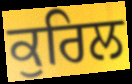
ਕੁਰਿਲ